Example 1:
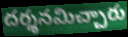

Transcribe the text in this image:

దర్శనమిచ్చారు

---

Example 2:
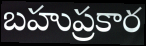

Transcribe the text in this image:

బహుప్రకార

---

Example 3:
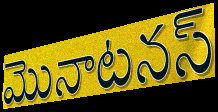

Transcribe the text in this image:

మొనాటనస్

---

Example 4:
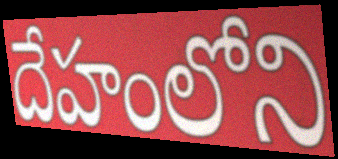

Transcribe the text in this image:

దేహంలోని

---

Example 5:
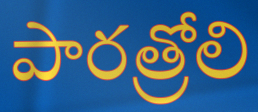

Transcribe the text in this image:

పారత్రోలి